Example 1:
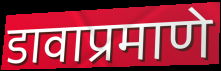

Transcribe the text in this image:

डावाप्रमाणे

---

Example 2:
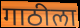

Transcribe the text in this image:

गाठीला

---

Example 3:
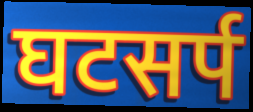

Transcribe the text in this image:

घटसर्प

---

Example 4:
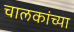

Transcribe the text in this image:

चालकांच्या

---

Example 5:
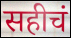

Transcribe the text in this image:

सहीचं